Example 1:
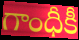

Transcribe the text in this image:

గాంధీకీ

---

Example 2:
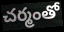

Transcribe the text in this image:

చర్మంతో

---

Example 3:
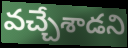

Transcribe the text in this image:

వచ్చేశాడని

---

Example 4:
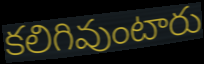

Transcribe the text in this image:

కలిగివుంటారు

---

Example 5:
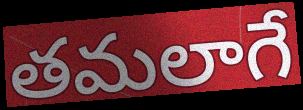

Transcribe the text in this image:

తమలాగే